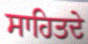
ਸਾਹਿਤਦੇ